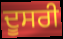
ਦੂਸਰੀ